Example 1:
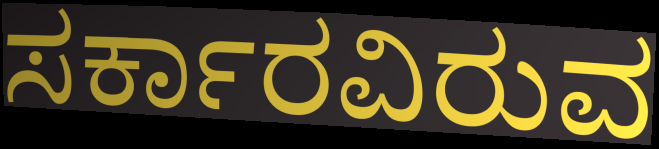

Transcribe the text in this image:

ಸರ್ಕಾರವಿರುವ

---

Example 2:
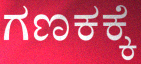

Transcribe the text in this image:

ಗಣಕಕ್ಕೆ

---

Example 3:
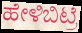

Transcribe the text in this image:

ಹೇಳಿಬಿಟ್ರೆ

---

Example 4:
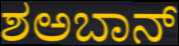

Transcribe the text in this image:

ಶಅಬಾನ್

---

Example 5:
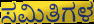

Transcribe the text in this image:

ಸಮಿತಿಗಳ